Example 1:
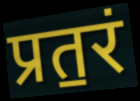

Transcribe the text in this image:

प्रत॒रं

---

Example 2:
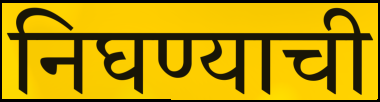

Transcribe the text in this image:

निघण्याची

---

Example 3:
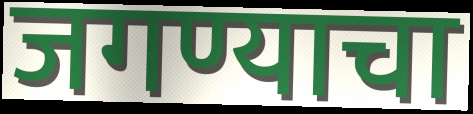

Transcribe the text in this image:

जगण्याचा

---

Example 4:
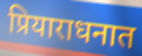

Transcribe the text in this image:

प्रियाराधनात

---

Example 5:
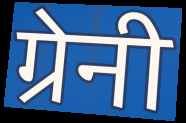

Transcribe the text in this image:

ग्रेनी